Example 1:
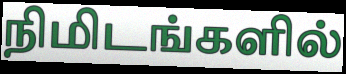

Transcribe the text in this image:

நிமிடங்களில்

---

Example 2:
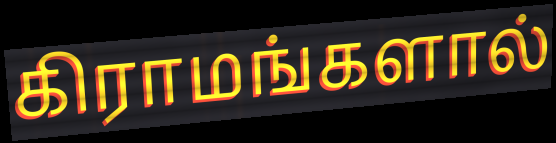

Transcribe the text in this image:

கிராமங்களால்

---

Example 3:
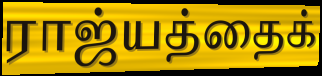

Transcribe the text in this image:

ராஜ்யத்தைக்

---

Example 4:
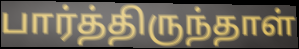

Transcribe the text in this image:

பார்த்திருந்தாள்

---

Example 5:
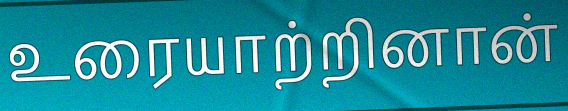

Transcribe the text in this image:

உரையாற்றினான்